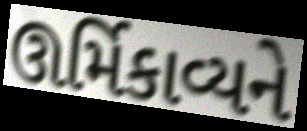
ઊર્મિકાવ્યને